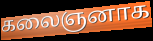
கலைஞனாக